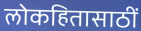
लोकहितासाठीं